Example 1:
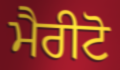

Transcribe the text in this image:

ਮੈਰੀਟੋ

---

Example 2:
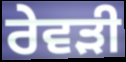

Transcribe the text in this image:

ਰੇਵੜੀ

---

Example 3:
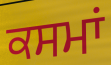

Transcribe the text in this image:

ਕਸਮਾਂ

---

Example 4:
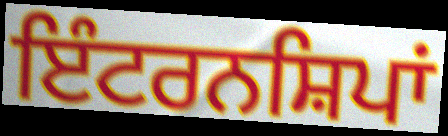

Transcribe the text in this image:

ਇੰਟਰਨਸ਼ਿਪਾਂ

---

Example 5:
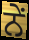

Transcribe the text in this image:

ਨੇਂ